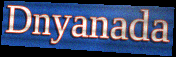
Dnyanada